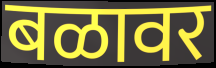
बळावर